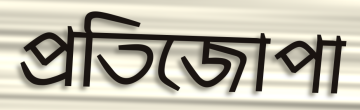
প্ৰতিজোপা